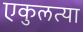
एकुलत्या